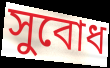
সুবোধ